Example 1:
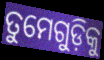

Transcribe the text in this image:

ତୁମେଗୁଡ଼ିକୁ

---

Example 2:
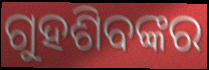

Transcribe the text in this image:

ଗୁହଶିବଙ୍କର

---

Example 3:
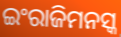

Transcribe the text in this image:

ଇଂରାଜିମନସ୍କ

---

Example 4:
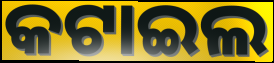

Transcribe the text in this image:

କଟାଇଲ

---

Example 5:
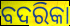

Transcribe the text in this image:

ବଦରିକା